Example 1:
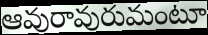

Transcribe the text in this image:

ఆవురావురుమంటూ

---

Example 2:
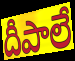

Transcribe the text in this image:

దీపాలే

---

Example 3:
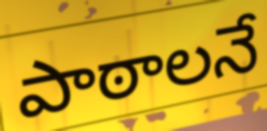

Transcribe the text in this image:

పాఠాలనే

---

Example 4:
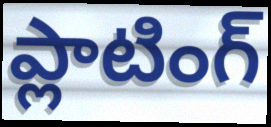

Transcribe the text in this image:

ప్లాటింగ్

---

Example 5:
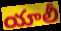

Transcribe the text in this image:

యాలీ